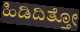
ಹಿಡಿದಿತ್ತೋ